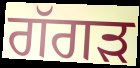
ਗੱਗੜ